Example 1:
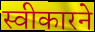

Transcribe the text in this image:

स्वीकारने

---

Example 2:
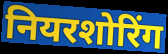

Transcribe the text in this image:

नियरशोरिंग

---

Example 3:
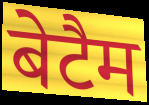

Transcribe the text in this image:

बेटैम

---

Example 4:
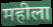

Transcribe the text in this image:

महीला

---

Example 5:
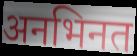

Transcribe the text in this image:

अनभिनत